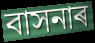
বাসনাৰ